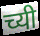
च्यी